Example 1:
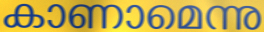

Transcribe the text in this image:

കാണാമെന്നു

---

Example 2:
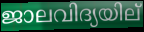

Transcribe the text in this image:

ജാലവിദ്യയില്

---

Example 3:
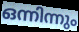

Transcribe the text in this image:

ഒന്നിന്നും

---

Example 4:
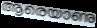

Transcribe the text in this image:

ആരെയാണു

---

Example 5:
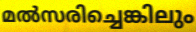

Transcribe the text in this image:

മൽസരിച്ചെങ്കിലും